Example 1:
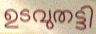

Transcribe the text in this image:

ഉടവുതട്ടി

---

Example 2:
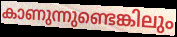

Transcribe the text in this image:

കാണുന്നുണ്ടെങ്കിലും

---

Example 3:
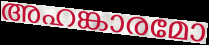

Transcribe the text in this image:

അഹങ്കാരമോ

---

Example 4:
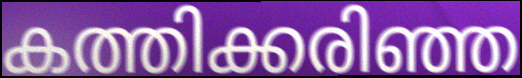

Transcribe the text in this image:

കത്തിക്കരിഞ്ഞ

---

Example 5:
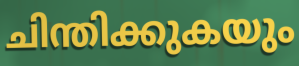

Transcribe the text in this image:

ചിന്തിക്കുകയും